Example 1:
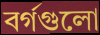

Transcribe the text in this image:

বর্গগুলো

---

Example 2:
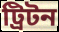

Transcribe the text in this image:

ট্রিটন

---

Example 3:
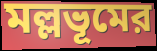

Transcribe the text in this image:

মল্লভূমের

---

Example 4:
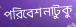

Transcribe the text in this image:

পরিবেশনাটুকু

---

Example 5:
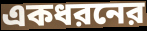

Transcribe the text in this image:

একধরনের